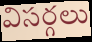
విసర్గలు